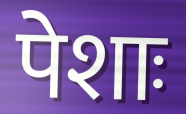
पेशाः